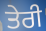
ਤੇਰੀ